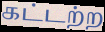
கட்டற்ற